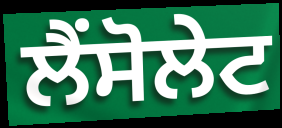
ਲੈਂਸੋਲੇਟ